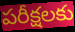
పరీక్షలకు